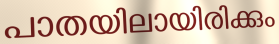
പാതയിലായിരിക്കും